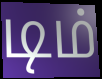
டிம்